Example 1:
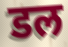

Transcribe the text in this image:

डल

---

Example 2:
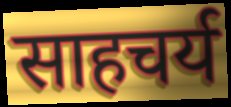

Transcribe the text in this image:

साहचर्य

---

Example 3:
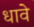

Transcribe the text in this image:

धावे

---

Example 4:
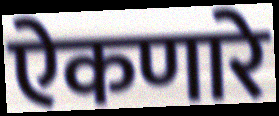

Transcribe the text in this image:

ऐकणारे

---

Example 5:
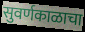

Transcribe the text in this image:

सुवर्णकाळाचा